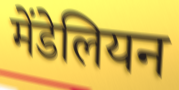
मेंडेलियन